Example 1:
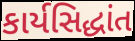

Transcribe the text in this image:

કાર્યસિદ્ધાંત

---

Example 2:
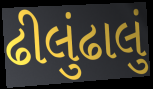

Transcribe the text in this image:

ઢીલુંઢાલું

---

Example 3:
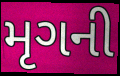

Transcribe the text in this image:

મૃગની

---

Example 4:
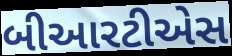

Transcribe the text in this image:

બીઆરટીએસ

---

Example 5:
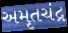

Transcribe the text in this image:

અમૃતચંદ્ર